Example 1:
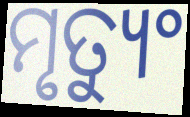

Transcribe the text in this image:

ମୃତ୍ୟୁଂ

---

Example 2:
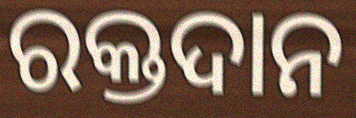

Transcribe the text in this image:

ରକ୍ତଦାନ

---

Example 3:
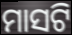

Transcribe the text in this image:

ମାସଟି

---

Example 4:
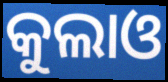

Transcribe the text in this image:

କୁଲାଓ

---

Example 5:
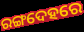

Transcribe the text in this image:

ରଙ୍ଗଦେହରେ